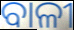
ବାଳୀ